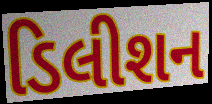
ડિલીશન